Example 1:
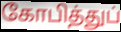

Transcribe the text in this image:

கோபித்துப்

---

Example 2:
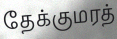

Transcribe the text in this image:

தேக்குமரத்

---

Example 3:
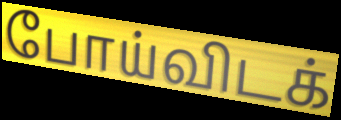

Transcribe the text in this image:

போய்விடக்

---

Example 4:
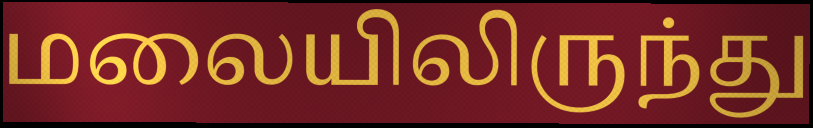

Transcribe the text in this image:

மலையிலிருந்து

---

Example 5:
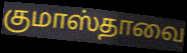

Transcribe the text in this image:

குமாஸ்தாவை